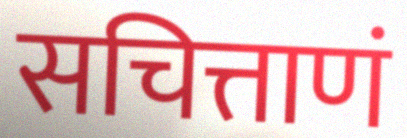
सचित्ताणं